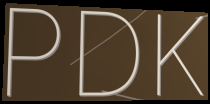
PDK